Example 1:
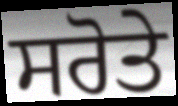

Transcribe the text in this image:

ਸਰੋਤੇ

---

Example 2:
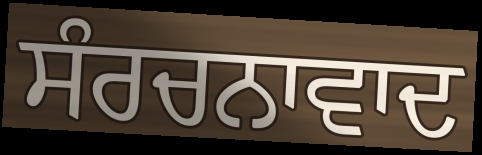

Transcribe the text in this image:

ਸੰਰਚਨਾਵਾਦ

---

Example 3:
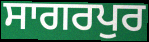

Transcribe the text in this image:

ਸਾਗਰਪੁਰ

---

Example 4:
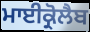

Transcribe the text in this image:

ਮਾਈਕ੍ਰੋਲੈਬ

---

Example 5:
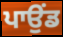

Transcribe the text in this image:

ਪਾਉਂਡ